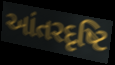
આંતરદૃષ્ટિ